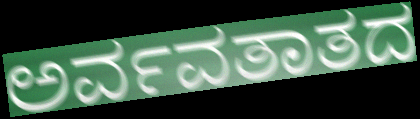
ಅರ್ವವತಾತದ